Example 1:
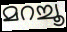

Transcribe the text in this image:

മറച്ചൂ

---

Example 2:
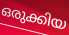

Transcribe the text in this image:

ഒരുക്കിയ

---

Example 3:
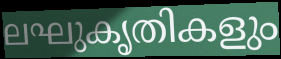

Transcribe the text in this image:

ലഘുകൃതികളും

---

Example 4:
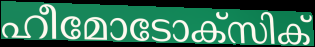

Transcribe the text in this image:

ഹീമോടോക്സിക്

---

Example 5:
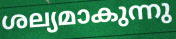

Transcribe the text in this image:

ശല്യമാകുന്നു